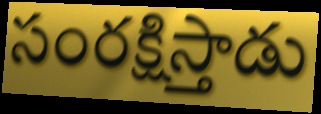
సంరక్షిస్తాడు